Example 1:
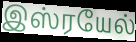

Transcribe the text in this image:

இஸ்ரயேல்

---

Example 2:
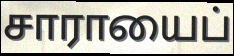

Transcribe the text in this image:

சாராயைப்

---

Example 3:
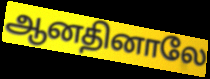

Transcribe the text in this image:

ஆனதினாலே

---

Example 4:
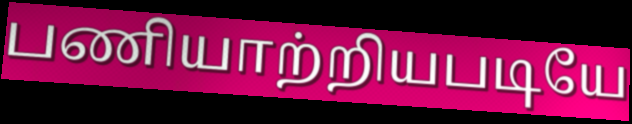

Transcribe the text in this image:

பணியாற்றியபடியே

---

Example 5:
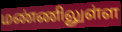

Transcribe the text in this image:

மண்ணிலுள்ள